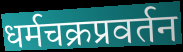
धर्मचक्रप्रवर्तन